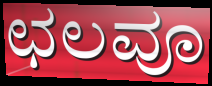
ಛಲವೂ